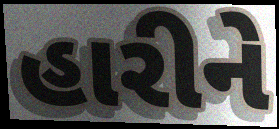
હારીને